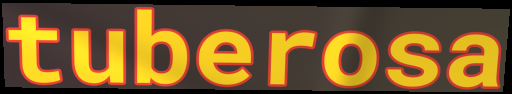
tuberosa